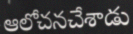
ఆలోచనచేశాడు